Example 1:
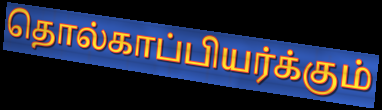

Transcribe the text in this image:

தொல்காப்பியர்க்கும்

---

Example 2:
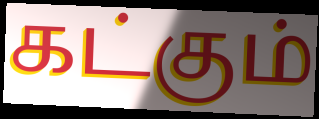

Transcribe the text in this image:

கட்கும்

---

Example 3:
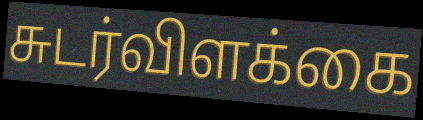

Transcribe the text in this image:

சுடர்விளக்கை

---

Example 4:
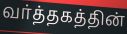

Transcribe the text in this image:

வர்த்தகத்தின்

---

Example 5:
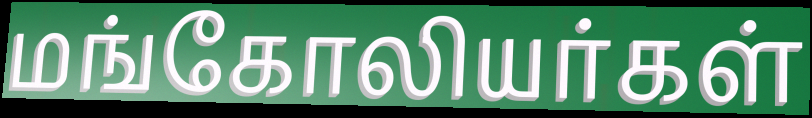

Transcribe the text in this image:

மங்கோலியர்கள்